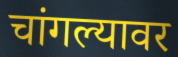
चांगल्यावर